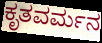
ಕೃತವರ್ಮನ